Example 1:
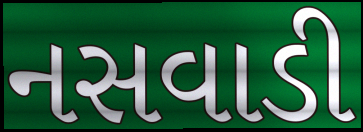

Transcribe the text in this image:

નસવાડી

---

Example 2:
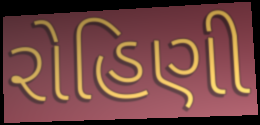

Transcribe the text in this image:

રોહિણી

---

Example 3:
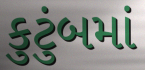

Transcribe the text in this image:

કુટુંબમાં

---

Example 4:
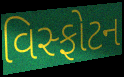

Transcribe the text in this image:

વિસ્ફોટન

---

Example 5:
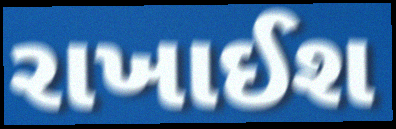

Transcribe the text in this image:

રાખાઈશ